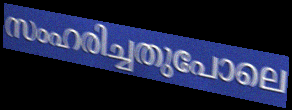
സംഹരിച്ചതുപോലെ